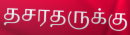
தசரதருக்கு